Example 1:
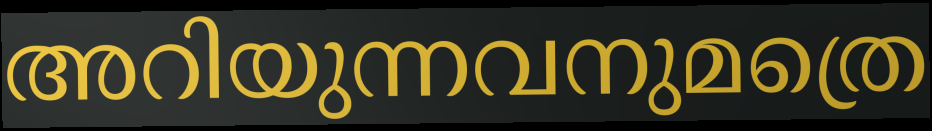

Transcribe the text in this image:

അറിയുന്നവനുമത്രെ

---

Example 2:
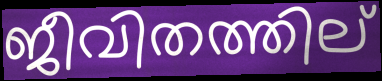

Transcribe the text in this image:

ജീവിതത്തില്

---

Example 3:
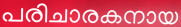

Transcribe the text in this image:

പരിചാരകനായ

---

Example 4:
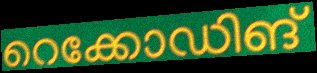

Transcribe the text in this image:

റെക്കോഡിങ്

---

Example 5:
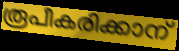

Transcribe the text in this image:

രൂപീകരിക്കാന്